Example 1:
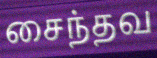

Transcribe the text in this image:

சைந்தவ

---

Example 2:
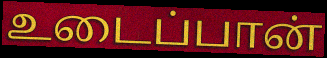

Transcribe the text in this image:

உடைப்பான்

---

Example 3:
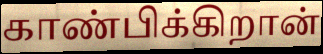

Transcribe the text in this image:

காண்பிக்கிறான்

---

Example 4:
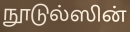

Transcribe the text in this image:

நூடுல்ஸின்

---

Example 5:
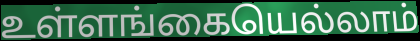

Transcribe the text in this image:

உள்ளங்கையெல்லாம்